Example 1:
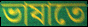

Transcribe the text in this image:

ভাষাতে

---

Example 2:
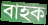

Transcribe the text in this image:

বাহক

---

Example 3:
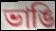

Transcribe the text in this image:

ভাঙি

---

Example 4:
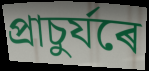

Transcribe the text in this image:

প্ৰাচুৰ্যৰে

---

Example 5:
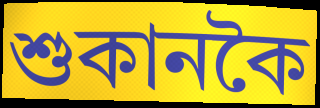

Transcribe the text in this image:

শুকানকৈ